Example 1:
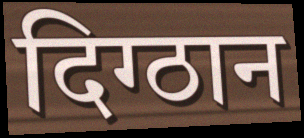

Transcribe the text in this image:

दिग्ठान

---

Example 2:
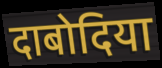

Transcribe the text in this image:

दाबोदिया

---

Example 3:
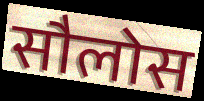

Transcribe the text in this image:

सौलोस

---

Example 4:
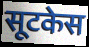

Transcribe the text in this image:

सूटकेस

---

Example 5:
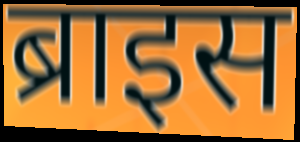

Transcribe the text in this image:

ब्राइस